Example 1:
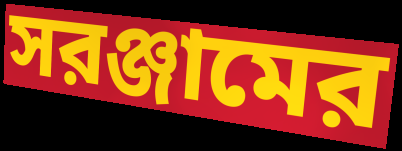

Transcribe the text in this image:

সরঞ্জামের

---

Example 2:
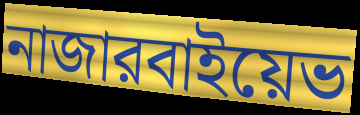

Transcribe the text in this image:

নাজারবাইয়েভ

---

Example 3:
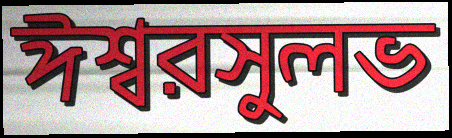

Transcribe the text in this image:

ঈশ্বরসুলভ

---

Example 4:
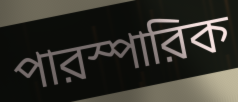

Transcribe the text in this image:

পারস্পারিক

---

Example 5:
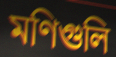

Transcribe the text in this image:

মণিগুলি